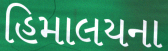
હિમાલયના